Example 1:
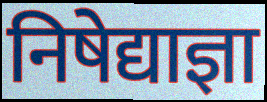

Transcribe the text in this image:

निषेद्याज्ञा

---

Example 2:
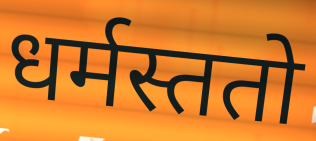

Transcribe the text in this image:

धर्मस्ततो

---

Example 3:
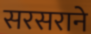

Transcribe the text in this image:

सरसराने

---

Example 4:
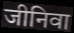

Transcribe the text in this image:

जीनिवा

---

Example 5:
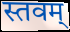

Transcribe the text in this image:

स्तवम्